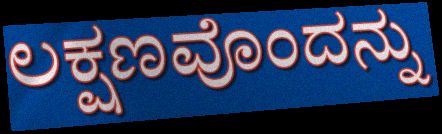
ಲಕ್ಷಣವೊಂದನ್ನು